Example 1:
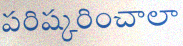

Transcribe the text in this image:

పరిష్కరించాలా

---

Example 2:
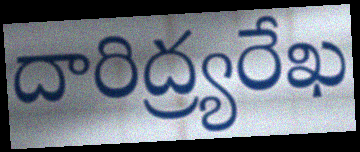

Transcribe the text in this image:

దారిద్ర్యరేఖ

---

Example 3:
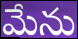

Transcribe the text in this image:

మేను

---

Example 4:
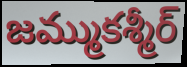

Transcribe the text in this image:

జమ్ముకశ్మీర్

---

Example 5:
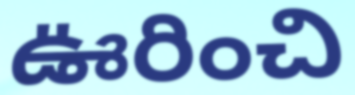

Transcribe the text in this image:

ఊరించి